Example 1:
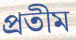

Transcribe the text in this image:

প্ৰতীম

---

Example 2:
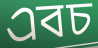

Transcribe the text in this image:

এবচ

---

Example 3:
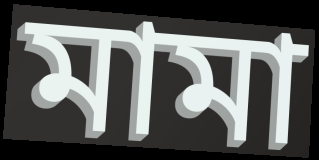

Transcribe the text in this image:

মামা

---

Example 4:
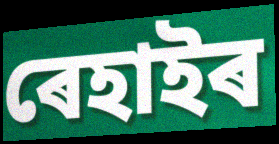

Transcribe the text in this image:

ৰেহাইৰ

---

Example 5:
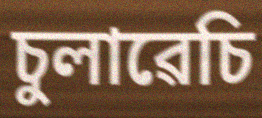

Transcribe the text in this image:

চুলাৱেচি